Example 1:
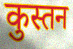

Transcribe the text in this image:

कुस्तन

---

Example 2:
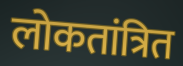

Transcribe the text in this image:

लोकतांत्रित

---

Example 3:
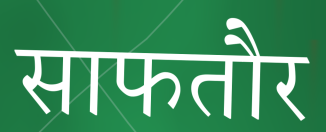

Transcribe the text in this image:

साफतौर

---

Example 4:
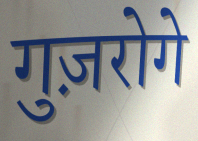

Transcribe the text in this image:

गुज़रोगे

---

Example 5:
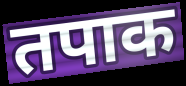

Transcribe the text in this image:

तपाक